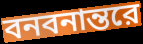
বনবনান্তরে